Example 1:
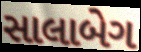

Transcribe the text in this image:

સાલાબેગ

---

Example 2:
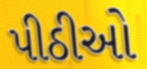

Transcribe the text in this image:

પીઠીઓ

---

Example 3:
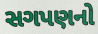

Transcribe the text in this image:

સગપણનો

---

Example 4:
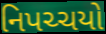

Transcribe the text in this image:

નિપચ્ચયો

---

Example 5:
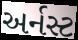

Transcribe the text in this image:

અર્નસ્ટ